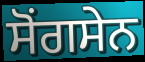
ਸੋਂਗਸੇਨ